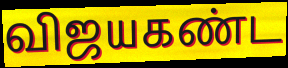
விஜயகண்ட